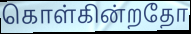
கொள்கின்றதோ